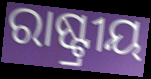
ରାଷ୍ଟ୍ରୀୟ